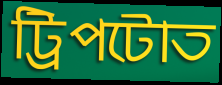
ট্ৰিপটোত